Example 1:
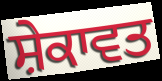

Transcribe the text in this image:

ਸ਼ੇਕਾਵਤ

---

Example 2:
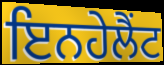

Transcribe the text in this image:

ਇਨਹੇਲੈਂਟ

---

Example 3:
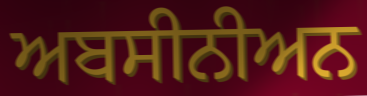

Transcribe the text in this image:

ਅਬਸੀਨੀਅਨ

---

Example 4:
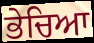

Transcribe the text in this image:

ਭੇਚਿਆ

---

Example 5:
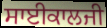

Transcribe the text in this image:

ਸਾਈਕਾਲਜੀ